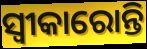
ସ୍ଵୀକାରୋନ୍ତି